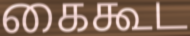
கைகூட